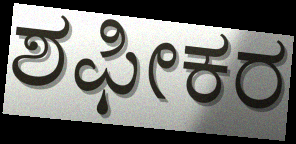
ಶಫೀಕರ